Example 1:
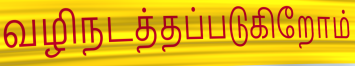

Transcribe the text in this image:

வழிநடத்தப்படுகிறோம்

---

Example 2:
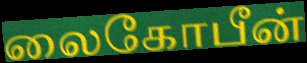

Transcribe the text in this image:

லைகோபீன்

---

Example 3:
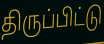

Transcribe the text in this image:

திருப்பிட்டு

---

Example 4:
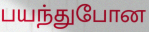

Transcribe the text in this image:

பயந்துபோன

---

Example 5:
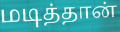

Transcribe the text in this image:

மடித்தான்